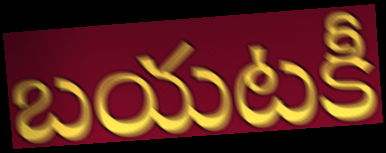
బయటకీ